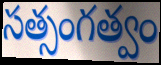
సత్సంగత్వం